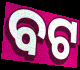
ବଟ